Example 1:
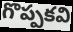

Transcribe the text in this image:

గొప్పకవి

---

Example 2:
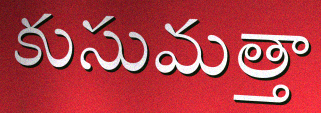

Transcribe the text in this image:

కుసుమత్తా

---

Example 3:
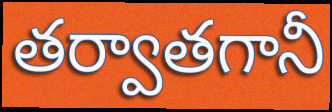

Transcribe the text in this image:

తర్వాతగానీ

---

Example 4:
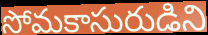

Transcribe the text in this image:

సోమకాసురుడిని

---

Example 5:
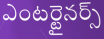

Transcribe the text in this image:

ఎంటర్టైనర్స్